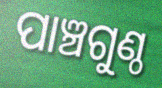
ପାଞ୍ଚଗୁଣ୍ଠ